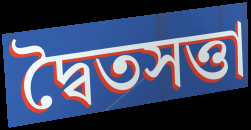
দ্বৈতসত্তা